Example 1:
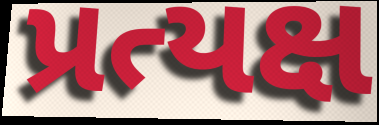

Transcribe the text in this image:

પ્રત્યક્ષ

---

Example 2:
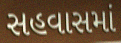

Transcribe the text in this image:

સહવાસમાં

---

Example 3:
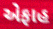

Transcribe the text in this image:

એફાહ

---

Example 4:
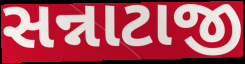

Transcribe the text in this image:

સન્નાટાજી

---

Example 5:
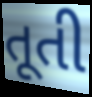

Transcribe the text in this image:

તૂતી